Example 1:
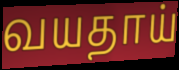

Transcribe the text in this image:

வயதாய்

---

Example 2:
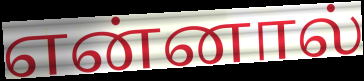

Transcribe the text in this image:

என்னால்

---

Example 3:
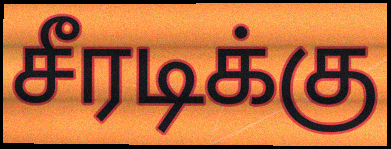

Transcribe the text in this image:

சீரடிக்கு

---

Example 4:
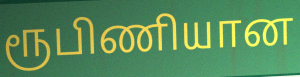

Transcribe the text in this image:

ரூபிணியான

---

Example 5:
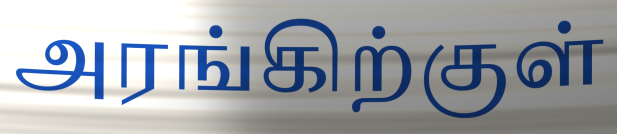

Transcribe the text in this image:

அரங்கிற்குள்